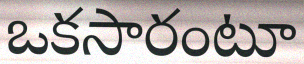
ఒకసారంటూ